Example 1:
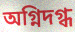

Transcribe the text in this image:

অগ্নিদগ্ধ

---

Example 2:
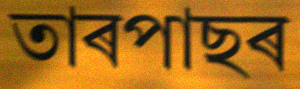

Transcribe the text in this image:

তাৰপাছৰ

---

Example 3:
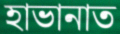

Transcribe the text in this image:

হাভানাত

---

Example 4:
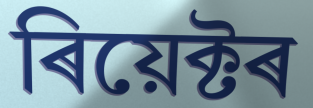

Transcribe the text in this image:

ৰিয়েক্টৰ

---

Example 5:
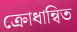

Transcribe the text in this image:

ক্ৰোধান্বিত